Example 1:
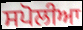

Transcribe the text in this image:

ਸਪੋਲੀਆ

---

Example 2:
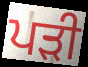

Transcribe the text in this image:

ਪਡ਼ੀ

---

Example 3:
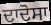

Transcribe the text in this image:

ਦਾਦੋਸਾ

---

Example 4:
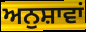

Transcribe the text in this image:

ਅਨੁਸ਼ਾਵਾਂ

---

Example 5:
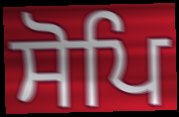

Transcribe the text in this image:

ਸੋਪਿ